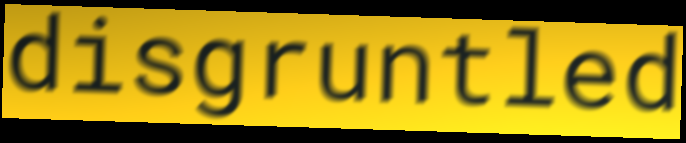
disgruntled